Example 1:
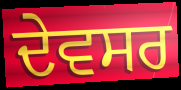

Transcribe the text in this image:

ਦੇਵਸਰ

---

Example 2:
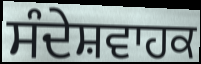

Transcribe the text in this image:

ਸੰਦੇਸ਼ਵਾਹਕ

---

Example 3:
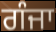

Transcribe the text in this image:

ਗੰਜਾ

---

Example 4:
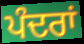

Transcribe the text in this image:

ਪੰਦਰਾਂ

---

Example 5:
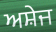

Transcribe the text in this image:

ਅਸ਼ੇਜ